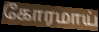
கோரமாய்